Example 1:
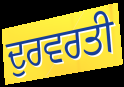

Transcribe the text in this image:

ਦੁਰਵਰਤੀ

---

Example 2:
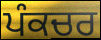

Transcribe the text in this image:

ਪੰਕਚਰ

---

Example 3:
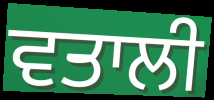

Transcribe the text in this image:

ਵਤਾਲੀ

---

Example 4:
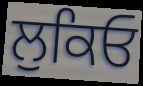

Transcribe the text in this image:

ਲੁਕਿਓ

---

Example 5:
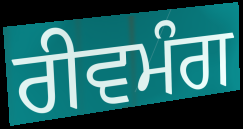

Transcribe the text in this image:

ਰੀਵਮੰਗ